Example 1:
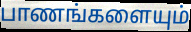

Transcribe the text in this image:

பாணங்களையும்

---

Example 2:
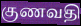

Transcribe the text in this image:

குணவதி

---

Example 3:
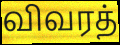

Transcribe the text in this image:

விவரத்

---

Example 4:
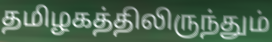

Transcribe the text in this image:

தமிழகத்திலிருந்தும்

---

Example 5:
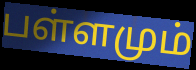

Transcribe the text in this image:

பள்ளமும்